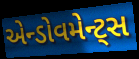
એન્ડોવમેન્ટ્સ